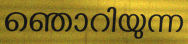
ഞൊറിയുന്ന